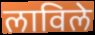
लाविले